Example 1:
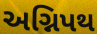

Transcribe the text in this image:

અગ્નિપથ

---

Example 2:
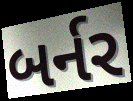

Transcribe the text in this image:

બર્નર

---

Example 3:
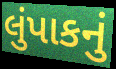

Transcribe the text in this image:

લુંપાકનું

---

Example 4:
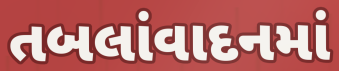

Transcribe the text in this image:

તબલાંવાદનમાં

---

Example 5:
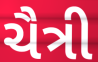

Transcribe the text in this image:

ચૈત્રી